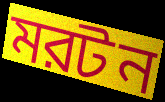
মরটন